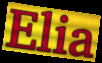
Elia